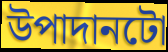
উপাদানটো